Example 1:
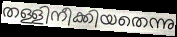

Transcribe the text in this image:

തള്ളിനീക്കിയതെന്നു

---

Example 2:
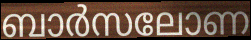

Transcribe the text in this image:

ബാർസലോണ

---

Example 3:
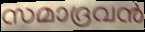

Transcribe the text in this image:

സമാദ്രവൻ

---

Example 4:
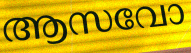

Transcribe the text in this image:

ആസവോ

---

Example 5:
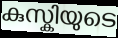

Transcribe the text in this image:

കുസ്കിയുടെ